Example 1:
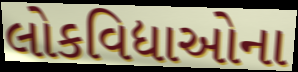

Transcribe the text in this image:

લોકવિદ્યાઓના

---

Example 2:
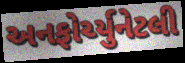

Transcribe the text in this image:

અનફોર્ચ્યુનેટલી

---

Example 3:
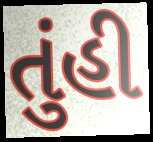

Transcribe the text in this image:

તુંહી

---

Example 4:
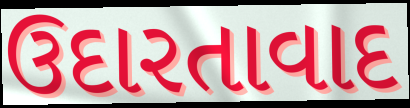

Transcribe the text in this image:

ઉદારતાવાદ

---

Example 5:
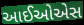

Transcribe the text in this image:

આઈઓએસ